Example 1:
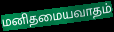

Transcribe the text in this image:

மனிதமையவாதம்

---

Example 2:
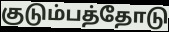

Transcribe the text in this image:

குடும்பத்தோடு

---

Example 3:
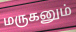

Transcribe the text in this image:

மருகனும்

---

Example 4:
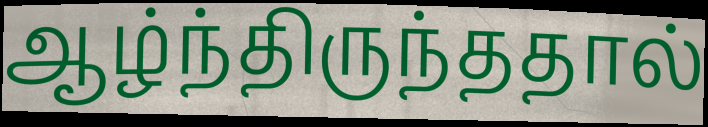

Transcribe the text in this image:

ஆழ்ந்திருந்ததால்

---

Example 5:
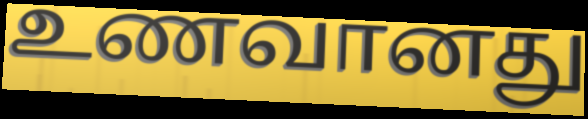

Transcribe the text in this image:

உணவானது